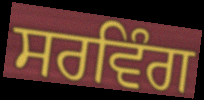
ਸਰਵਿੰਗ